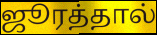
ஜூரத்தால்